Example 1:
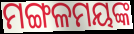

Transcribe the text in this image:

ମଙ୍ଗଳମୟଙ୍କ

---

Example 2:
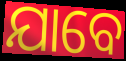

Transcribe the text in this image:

ଯାବେ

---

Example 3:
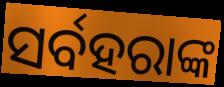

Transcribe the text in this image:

ସର୍ବହରାଙ୍କ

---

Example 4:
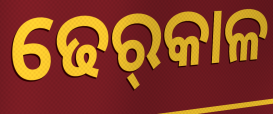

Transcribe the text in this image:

ଢେର୍‌କାଳ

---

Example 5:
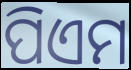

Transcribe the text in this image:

ପିଏମ